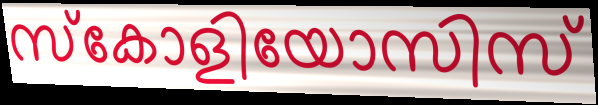
സ്കോളിയോസിസ്